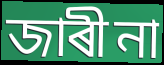
জাৰীনা